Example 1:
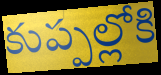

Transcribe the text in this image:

కుప్పల్లోకి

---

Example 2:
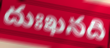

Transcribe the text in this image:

దుఃఖనది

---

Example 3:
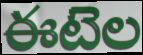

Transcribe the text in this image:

ఈటెల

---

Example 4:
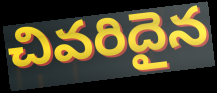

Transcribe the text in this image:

చివరిదైన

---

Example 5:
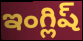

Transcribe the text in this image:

ఇంగ్లిష్